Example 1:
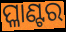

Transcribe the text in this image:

ପ୍ଳାଣ୍ଟର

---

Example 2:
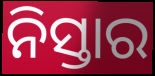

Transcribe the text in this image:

ନିସ୍ତାର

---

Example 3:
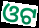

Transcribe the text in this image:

ଓଟ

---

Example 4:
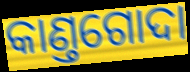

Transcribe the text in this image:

କାଣ୍ତଗୋଦା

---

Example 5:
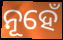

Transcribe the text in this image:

ନୂହେଁ